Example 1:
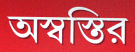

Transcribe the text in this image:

অস্বস্তির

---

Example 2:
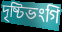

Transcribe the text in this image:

দৃষ্টিভংগি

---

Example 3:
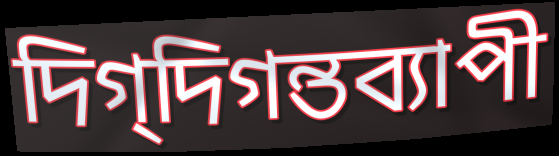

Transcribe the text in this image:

দিগ্‌দিগন্তব্যাপী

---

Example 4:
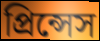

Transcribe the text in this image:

প্রিন্সেস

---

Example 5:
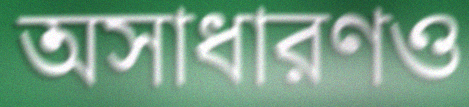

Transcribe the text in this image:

অসাধারণও